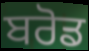
ਬਰੋਡ